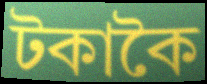
টকাকৈ